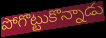
పోగొట్టుకొన్నాడు